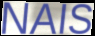
NAIS